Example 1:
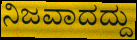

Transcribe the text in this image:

ನಿಜವಾದದ್ದು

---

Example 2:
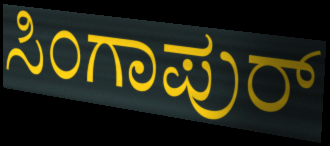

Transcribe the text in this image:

ಸಿಂಗಾಪುರ್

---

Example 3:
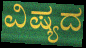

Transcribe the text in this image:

ವಿಷ್ಯದ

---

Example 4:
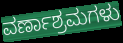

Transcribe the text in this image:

ವರ್ಣಾಶ್ರಮಗಳು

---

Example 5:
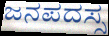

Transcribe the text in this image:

ಜನಪದಸ್ಸ